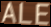
ALE